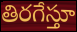
తిరగేస్తూ